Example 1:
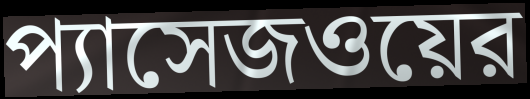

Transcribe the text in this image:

প্যাসেজওয়ের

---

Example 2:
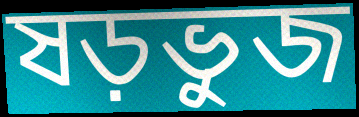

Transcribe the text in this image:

ষড়ভুজ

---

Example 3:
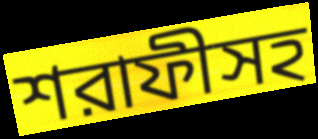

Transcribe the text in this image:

শরাফীসহ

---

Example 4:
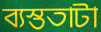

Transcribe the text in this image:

ব্যস্ততাটা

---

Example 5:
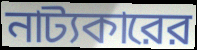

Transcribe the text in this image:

নাট্যকারের